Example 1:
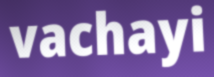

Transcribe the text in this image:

vachayi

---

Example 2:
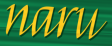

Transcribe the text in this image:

naru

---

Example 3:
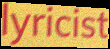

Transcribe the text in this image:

lyricist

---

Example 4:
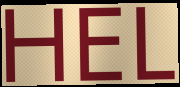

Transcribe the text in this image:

HEL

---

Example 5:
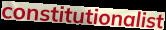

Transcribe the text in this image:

constitutionalist